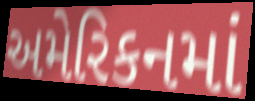
અમેરિકનમાં